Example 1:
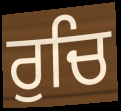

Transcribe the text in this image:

ਰੁਚਿ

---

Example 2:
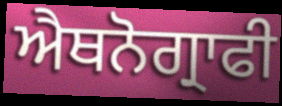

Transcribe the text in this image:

ਐਥਨੋਗ੍ਰਾਫੀ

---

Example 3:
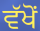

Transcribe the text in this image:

ਵੱਖੋਂ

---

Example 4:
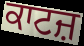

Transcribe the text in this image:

ਕਾਟਜ਼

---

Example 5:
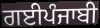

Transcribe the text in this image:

ਗਈਪੰਜਾਬੀ